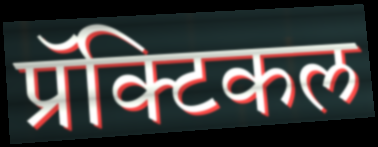
प्रॅक्टिकल